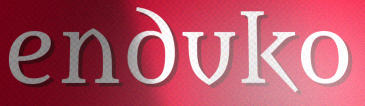
enduko